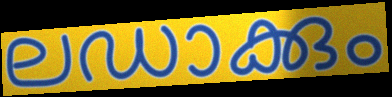
ലഡാക്കും